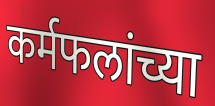
कर्मफलांच्या